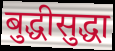
बुद्धीसुद्धा